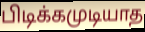
பிடிக்கமுடியாத